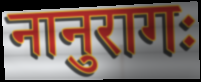
नानुरागः